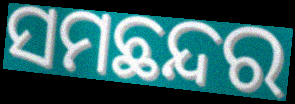
ସମଛନ୍ଦର